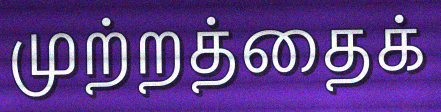
முற்றத்தைக்